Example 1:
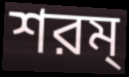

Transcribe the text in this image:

শরম্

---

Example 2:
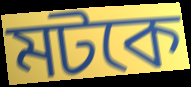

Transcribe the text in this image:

মটকে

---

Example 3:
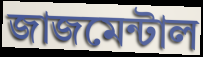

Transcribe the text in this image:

জাজমেন্টাল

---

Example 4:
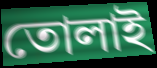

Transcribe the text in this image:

তোলাই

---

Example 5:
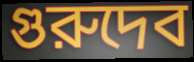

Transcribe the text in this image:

গুরুদেব